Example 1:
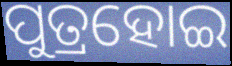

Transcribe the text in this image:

ପୁତ୍ରହୋଇ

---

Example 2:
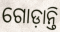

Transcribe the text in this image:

ଗୋଡ଼ାନ୍ତି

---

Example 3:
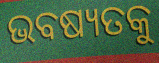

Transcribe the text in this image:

ଭବଷ୍ୟତକୁ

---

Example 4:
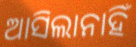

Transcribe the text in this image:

ଆସିଲାନାହିଁ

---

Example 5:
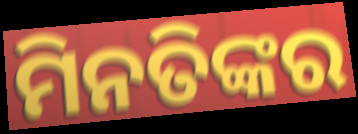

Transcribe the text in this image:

ମିନତିଙ୍କର